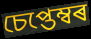
চেপ্তেম্বৰ